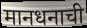
मानधनाची